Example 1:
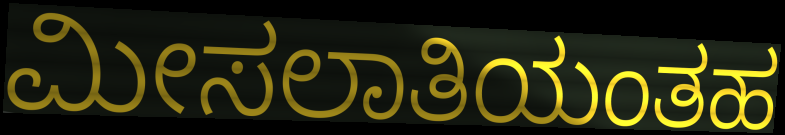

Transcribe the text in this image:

ಮೀಸಲಾತಿಯಂತಹ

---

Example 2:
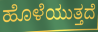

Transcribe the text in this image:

ಹೊಳೆಯುತ್ತದೆ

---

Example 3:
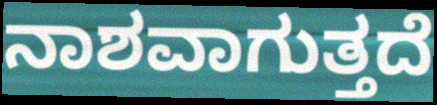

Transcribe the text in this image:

ನಾಶವಾಗುತ್ತದೆ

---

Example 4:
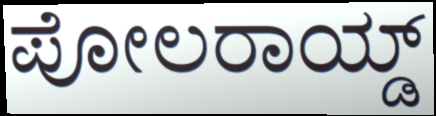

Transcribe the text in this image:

ಪೋಲರಾಯ್ಡ್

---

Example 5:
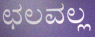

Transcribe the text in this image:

ಛಲವಲ್ಲ